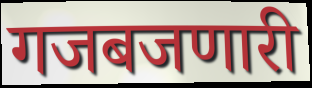
गजबजणारी